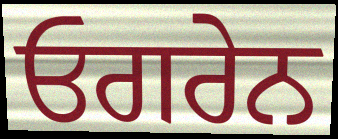
ਓਗਰੇਨ